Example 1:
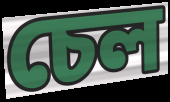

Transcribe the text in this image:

চেল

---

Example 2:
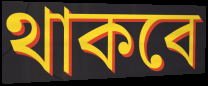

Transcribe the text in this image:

থাকবে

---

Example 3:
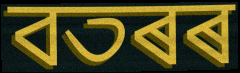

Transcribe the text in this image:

বতৰৰ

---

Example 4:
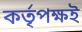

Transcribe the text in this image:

কৰ্তৃপক্ষই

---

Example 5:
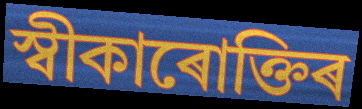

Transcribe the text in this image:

স্বীকাৰোক্তিৰ